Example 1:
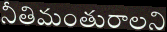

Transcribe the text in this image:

నీతిమంతురాలని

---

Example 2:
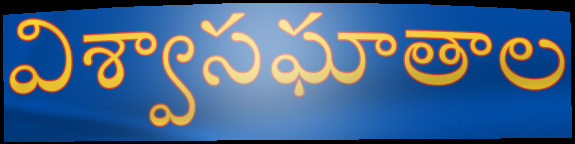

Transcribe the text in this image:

విశ్వాసఘాతాల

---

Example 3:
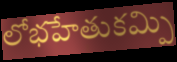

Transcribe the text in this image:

లోభహేతుకమ్పి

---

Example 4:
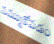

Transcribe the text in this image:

నమ్ముకోవడం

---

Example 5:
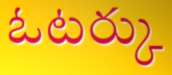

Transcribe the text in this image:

ఓటర్కు